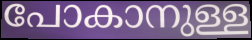
പോകാനുള്ള